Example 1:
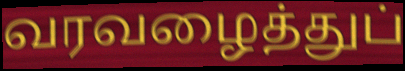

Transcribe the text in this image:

வரவழைத்துப்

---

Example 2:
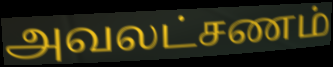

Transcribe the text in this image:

அவலட்சணம்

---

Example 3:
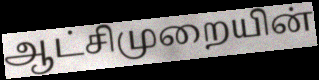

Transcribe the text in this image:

ஆட்சிமுறையின்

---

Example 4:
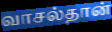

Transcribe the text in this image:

வாசல்தான்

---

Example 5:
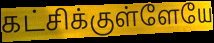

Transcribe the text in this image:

கட்சிக்குள்ளேயே